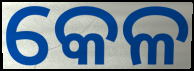
କେଳ